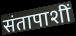
संतापाशीं